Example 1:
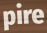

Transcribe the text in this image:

pire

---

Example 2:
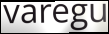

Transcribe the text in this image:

varegu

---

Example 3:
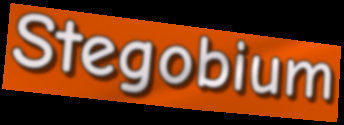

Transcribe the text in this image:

Stegobium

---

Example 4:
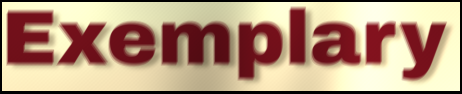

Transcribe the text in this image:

Exemplary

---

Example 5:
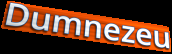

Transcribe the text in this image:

Dumnezeu